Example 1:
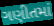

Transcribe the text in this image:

ગણીતમાં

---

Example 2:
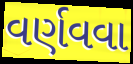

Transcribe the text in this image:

વર્ણવવા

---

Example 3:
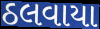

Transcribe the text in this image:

ઠલવાયા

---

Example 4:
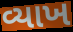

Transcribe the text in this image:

વ્યાખ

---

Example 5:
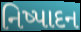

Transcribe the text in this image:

નિષ્પાદન